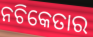
ନଚିକେତାର